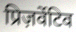
प्रिज़र्वेटिव